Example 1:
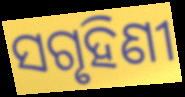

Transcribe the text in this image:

ସଗୃହିଣୀ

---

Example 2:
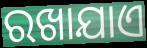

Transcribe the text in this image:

ରଖାଯାଏ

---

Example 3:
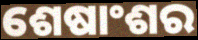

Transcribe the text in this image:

ଶେଷାଂଶର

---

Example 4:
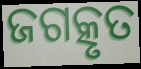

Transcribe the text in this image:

ଜଗତ୍କୃତ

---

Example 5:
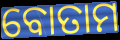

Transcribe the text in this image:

ବୋତାମ